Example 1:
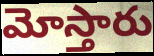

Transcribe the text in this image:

మోస్తారు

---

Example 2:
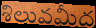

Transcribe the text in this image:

శిలువమీద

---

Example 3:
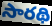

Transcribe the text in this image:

సారథి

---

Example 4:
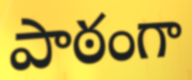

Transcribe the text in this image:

పాఠంగా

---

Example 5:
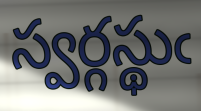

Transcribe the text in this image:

స్వర్గస్థుఁ